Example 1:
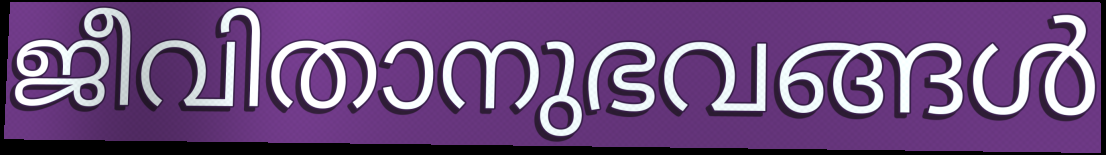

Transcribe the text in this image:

ജീവിതാനുഭവങ്ങൾ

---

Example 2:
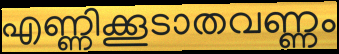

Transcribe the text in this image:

എണ്ണിക്കൂടാതവണ്ണം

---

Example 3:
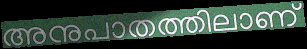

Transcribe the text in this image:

അനുപാതത്തിലാണ്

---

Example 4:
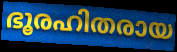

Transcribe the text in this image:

ഭൂരഹിതരായ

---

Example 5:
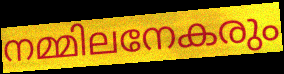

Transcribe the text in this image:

നമ്മിലനേകരും